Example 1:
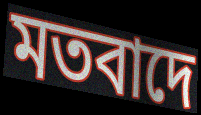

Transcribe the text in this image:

মতবাদে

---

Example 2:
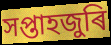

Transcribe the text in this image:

সপ্তাহজুৰি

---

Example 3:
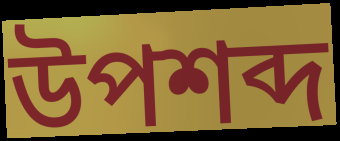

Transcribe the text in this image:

উপশব্দ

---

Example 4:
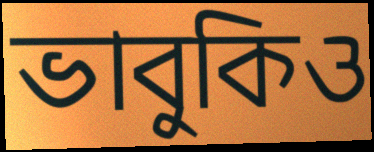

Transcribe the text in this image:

ভাবুকিও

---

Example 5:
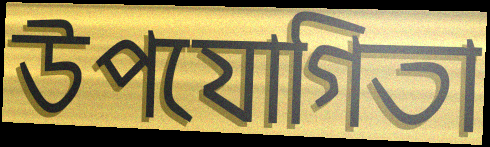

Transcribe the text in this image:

উপযোগিতা